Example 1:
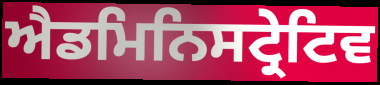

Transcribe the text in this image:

ਐਡਮਿਨਿਸਟ੍ਰੇਟਿਵ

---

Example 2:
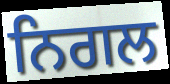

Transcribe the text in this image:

ਨਿਗਲ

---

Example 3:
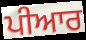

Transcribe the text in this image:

ਪੀਆਰ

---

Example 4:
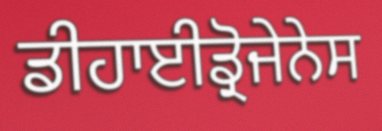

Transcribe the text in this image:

ਡੀਹਾਈਡ੍ਰੋਜੇਨੇਸ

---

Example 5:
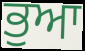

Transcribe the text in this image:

ਭੁਆ